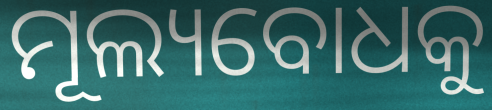
ମୂଲ୍ୟବୋଧକୁ